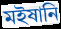
মইষানি